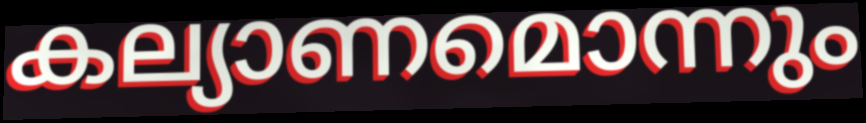
കല്യാണമൊന്നും